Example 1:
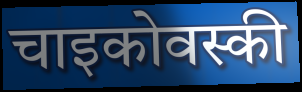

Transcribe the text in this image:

चाइकोवस्की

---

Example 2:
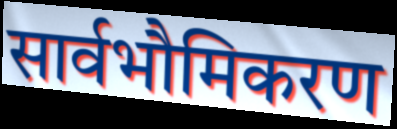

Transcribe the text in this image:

सार्वभौमिकरण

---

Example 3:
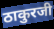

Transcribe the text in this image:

ठाकुरजी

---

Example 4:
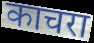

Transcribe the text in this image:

काचरा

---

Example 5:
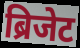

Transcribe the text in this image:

ब्रिजेट